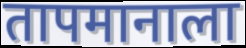
तापमानाला